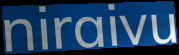
niraivu